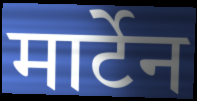
मार्टेन